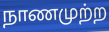
நாணமுற்ற